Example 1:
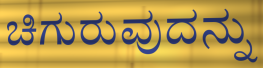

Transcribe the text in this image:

ಚಿಗುರುವುದನ್ನು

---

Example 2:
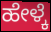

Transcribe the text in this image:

ಹೇಳ್ಕೆ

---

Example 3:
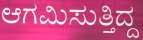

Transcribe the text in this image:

ಆಗಮಿಸುತ್ತಿದ್ದ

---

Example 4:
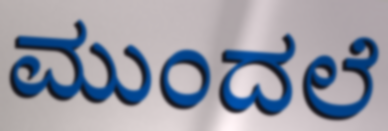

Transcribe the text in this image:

ಮುಂದಲೆ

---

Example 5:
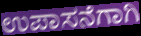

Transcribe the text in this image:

ಉಪಾಸನೆಗಾಗಿ